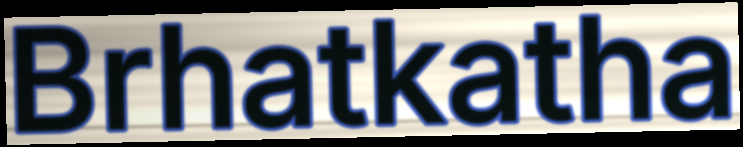
Brhatkatha